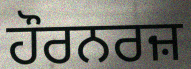
ਹੌਰਨਰਜ਼